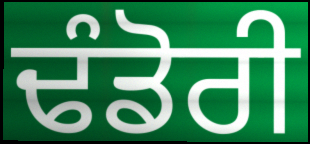
ਢੰਡੋਰੀ